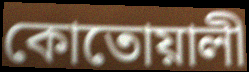
কোতোয়ালী